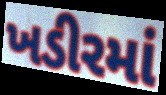
ખડીરમાં